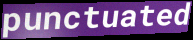
punctuated